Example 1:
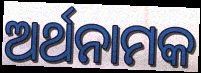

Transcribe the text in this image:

ଅର୍ଥନାମକ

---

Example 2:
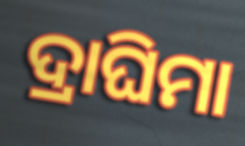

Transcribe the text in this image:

ଦ୍ରାଘିମା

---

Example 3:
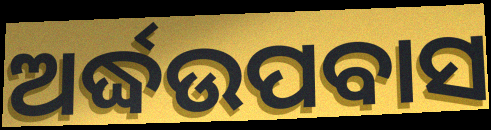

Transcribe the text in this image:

ଅର୍ଦ୍ଧଉପବାସ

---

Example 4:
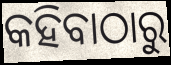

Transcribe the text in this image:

କହିବାଠାରୁ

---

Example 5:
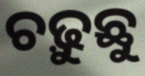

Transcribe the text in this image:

ଚଢ଼ୁଛୁ